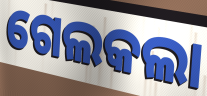
ଗେଲକଲା